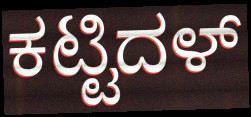
ಕಟ್ಟಿದಳ್